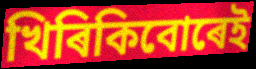
খিৰিকিবোৰেই